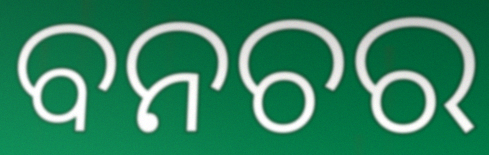
ବନଚର